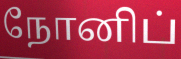
நோனிப்